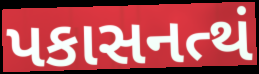
પકાસનત્થં